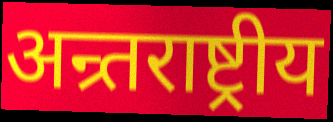
अन्र्तराष्ट्रीय